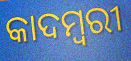
କାଦମ୍ବରୀ